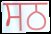
ਸਠ